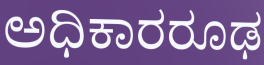
ಅಧಿಕಾರರೂಢ